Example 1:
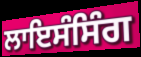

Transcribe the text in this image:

ਲਾਇਸੰਸਿੰਗ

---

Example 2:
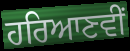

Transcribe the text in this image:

ਹਰਿਆਣਵੀਂ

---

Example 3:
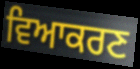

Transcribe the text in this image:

ਵਿਆਕਰਣ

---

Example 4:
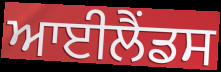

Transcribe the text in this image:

ਆਈਲੈਂਡਸ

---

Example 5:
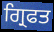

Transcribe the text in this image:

ਗ੍ਰਿਫਤ